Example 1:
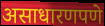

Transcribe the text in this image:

असाधारणपणे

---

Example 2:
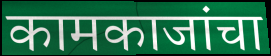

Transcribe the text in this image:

कामकाजांचा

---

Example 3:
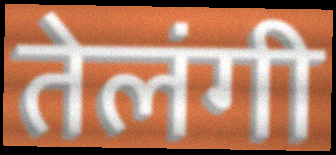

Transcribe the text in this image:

तेलंगी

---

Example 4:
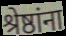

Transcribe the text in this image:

श्रेष्ठांना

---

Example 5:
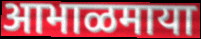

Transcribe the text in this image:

आभाळमाया